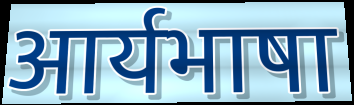
आर्यभाषा